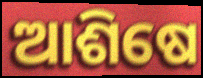
ଆଶିଷେ